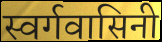
स्वर्गवासिनी